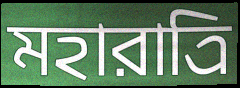
মহারাত্রি